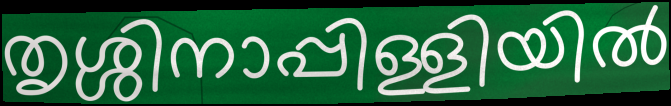
തൃശ്ശിനാപ്പിള്ളിയിൽ